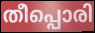
തീപ്പൊരി